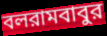
বলরামবাবুর